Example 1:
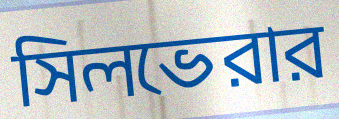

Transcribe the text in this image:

সিলভেরার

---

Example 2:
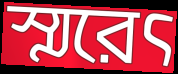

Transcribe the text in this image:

স্মরেৎ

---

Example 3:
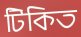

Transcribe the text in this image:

টিকিত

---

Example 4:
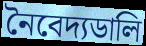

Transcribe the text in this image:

নৈবেদ্যডালি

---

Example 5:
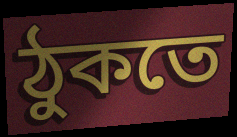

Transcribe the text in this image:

ঠুকতে